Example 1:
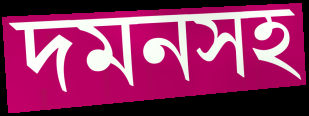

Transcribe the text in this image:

দমনসহ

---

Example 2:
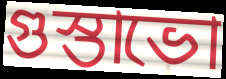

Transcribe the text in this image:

গুস্তাভো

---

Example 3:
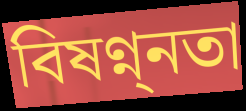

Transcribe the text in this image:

বিষণ্ন্নতা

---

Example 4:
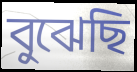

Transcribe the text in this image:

বুঝেছি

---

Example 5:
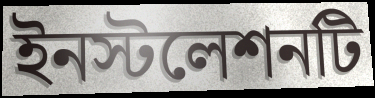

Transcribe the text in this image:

ইনস্টলেশনটি